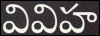
వివిహ